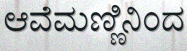
ಆವೆಮಣ್ಣಿನಿಂದ